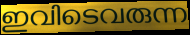
ഇവിടെവരുന്ന